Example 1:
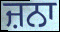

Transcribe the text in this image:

ਜ਼ਨਾ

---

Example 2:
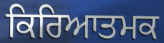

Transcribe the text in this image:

ਕਿਰਿਆਤਮਕ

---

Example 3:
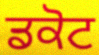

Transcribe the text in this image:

ਡਕੋਟ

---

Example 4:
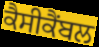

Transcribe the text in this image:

ਕੈਸੀਕੈਂਬਲ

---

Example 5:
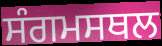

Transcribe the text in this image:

ਸੰਗਮਸਥਲ